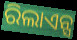
ରିଲାଏନ୍ସ